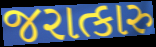
જરાત્કારુ